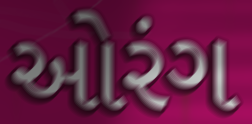
ઓરંગ